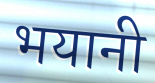
भयानी